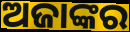
ଅଜାଙ୍କର